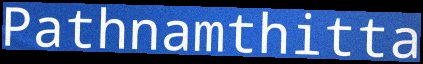
Pathnamthitta